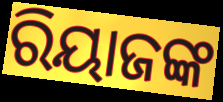
ରିୟାଜଙ୍କ